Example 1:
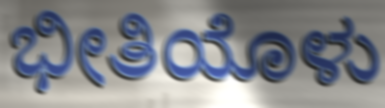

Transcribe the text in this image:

ಭೀತಿಯೊಳು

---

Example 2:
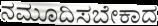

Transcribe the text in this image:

ನಮೂದಿಸಬೇಕಾದ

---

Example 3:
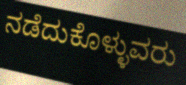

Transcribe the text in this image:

ನಡೆದುಕೊಳ್ಳುವರು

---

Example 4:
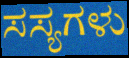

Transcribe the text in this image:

ಸಸ್ಯಗಳು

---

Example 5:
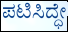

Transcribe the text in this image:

ಪಟಿಸಿದ್ಧೇ